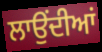
ਲਾਉਂਦੀਆਂ